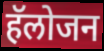
हॅलोजन